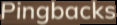
Pingbacks